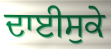
ਦਾਈਸੁਕੇ